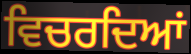
ਵਿਚਰਦਿਆਂ